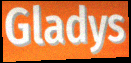
Gladys